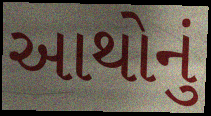
આથોનું